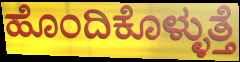
ಹೊಂದಿಕೊಳ್ಳುತ್ತೆ